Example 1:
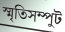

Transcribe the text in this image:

স্মৃতিসম্পুট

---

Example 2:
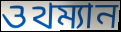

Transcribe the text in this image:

ওথম্যান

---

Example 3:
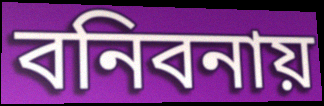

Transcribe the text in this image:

বনিবনায়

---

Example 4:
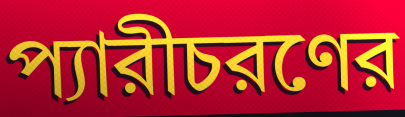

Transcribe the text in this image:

প্যারীচরণের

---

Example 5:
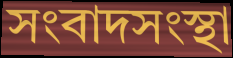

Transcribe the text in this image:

সংবাদসংস্থা